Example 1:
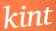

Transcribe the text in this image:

kint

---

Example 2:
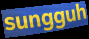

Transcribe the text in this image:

sungguh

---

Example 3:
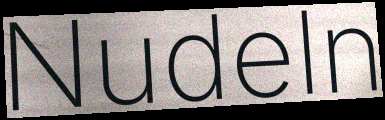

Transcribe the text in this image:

Nudeln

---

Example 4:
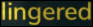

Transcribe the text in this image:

lingered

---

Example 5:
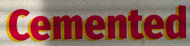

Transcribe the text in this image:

Cemented